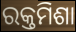
ରକ୍ତମିଶା